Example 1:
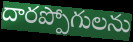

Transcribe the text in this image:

దారప్పోగులను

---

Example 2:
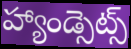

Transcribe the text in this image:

హ్యాండ్సెట్స్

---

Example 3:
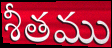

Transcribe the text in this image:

శీతము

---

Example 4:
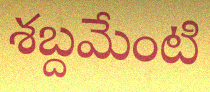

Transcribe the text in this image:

శబ్దమేంటి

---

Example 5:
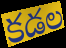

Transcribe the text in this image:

కడల